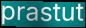
prastut